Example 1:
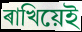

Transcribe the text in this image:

ৰাখিয়েই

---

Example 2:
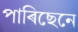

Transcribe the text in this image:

পাৰিছেনে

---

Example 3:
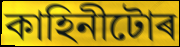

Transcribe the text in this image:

কাহিনীটোৰ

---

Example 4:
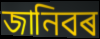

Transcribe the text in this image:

জানিবৰ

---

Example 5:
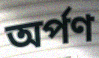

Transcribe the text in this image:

অৰ্পণ